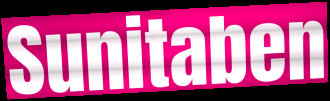
Sunitaben